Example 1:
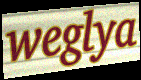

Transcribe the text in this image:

weglya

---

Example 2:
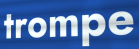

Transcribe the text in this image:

trompe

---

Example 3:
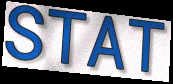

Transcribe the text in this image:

STAT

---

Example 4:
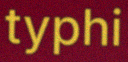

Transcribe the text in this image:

typhi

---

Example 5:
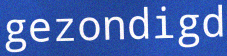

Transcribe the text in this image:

gezondigd